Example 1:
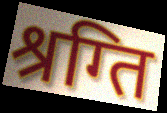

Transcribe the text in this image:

श्रग्ति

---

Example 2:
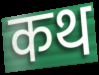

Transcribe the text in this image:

कथ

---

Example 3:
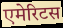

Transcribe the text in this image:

एमेरिटस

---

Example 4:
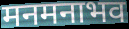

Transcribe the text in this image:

मनमनाभव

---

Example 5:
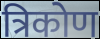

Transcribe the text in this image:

त्रिकोण